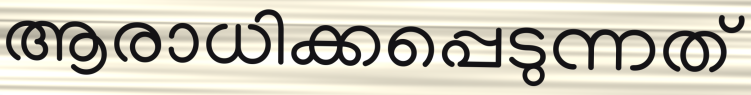
ആരാധിക്കപ്പെടുന്നത്